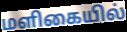
மளிகையில்